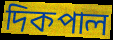
দিকপাল